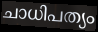
ചാധിപത്യം